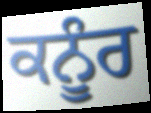
ਕਨੂੰਰ